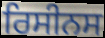
ਰਿਸੀਨਸ